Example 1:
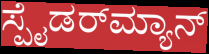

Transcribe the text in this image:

ಸ್ಪೈಡರ್‌ಮ್ಯಾನ್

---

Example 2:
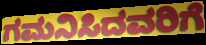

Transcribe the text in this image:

ಗಮನಿಸಿದವರಿಗೆ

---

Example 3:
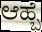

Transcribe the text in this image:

ಆಹ್ಬೆ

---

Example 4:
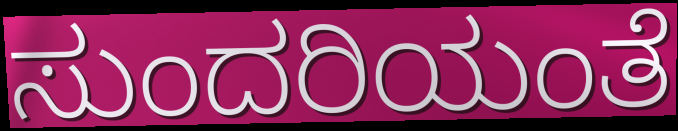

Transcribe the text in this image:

ಸುಂದರಿಯಂತೆ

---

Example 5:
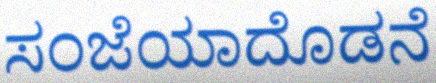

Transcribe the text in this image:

ಸಂಜೆಯಾದೊಡನೆ